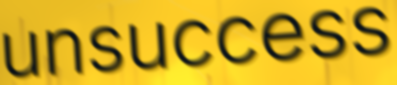
unsuccess